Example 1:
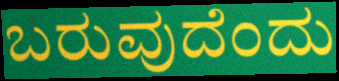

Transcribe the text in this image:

ಬರುವುದೆಂದು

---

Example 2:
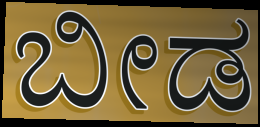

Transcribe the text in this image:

ಬೀಡ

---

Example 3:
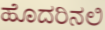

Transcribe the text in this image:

ಹೊದರಿನಲಿ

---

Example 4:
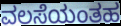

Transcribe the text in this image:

ವಲಸೆಯಂತಹ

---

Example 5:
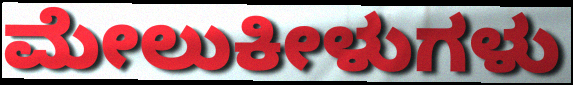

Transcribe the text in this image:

ಮೇಲುಕೀಳುಗಳು